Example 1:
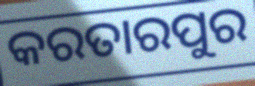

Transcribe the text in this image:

କରତାରପୁର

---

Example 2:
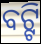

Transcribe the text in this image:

ବଟ୍ଟି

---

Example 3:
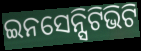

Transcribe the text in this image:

ଇନସେନ୍ସିଟିଭିଟି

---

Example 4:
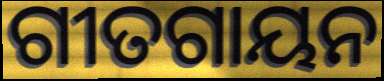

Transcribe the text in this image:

ଗୀତଗାୟନ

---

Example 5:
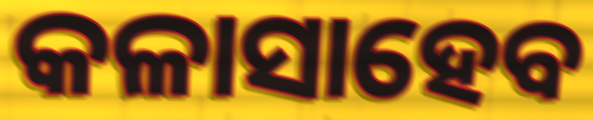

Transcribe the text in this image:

କଳାସାହେବ